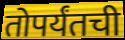
तोपर्यंतची